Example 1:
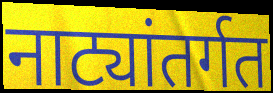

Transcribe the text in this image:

नाट्यांतर्गत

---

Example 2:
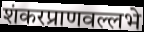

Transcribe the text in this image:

शंकरप्राणवल्लभे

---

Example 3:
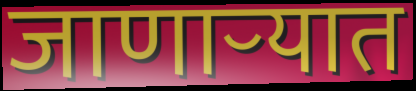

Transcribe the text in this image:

जाणाऱ्यात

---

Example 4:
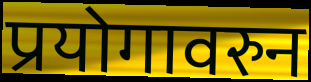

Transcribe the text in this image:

प्रयोगावरुन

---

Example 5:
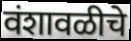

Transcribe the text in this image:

वंशावळीचे